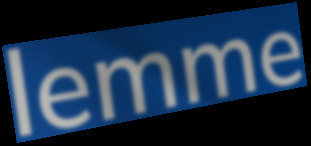
lemme